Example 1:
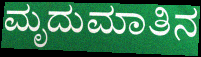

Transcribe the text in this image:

ಮೃದುಮಾತಿನ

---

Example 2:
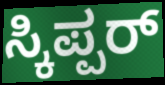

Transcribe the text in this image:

ಸ್ಕಿಪ್ಪರ್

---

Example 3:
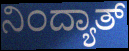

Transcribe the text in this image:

ನಿಂದ್ಯಾತ್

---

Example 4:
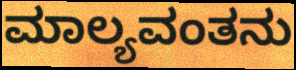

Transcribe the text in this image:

ಮಾಲ್ಯವಂತನು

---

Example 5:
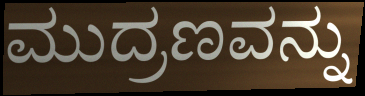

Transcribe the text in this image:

ಮುದ್ರಣವನ್ನು